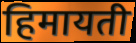
हिमायती